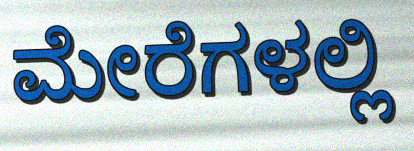
ಮೇರೆಗಳಲ್ಲಿ